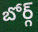
బోర్గ్